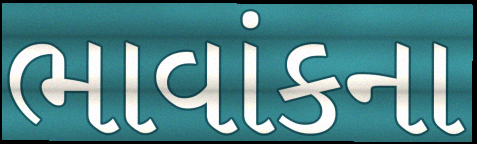
ભાવાંકના